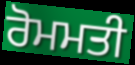
ਰੋਮਮਤੀ